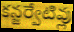
కన్జర్వేటివ్లు